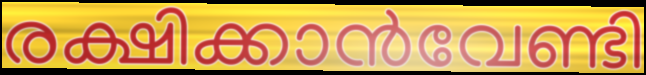
രക്ഷിക്കാൻവേണ്ടി